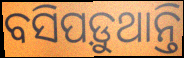
ବସିପଡ଼ୁଥାନ୍ତି